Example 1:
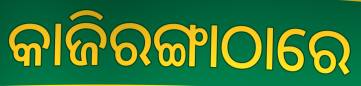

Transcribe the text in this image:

କାଜିରଙ୍ଗାଠାରେ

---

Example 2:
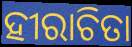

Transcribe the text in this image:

ହୀରାଚିତା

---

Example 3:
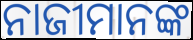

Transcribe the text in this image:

ନାଜୀମାନଙ୍କ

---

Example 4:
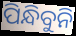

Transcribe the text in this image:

ପିନ୍ଧିବୁନି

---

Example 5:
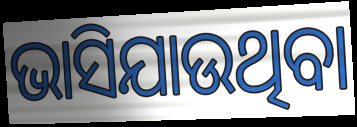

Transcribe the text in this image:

ଭାସିଯାଉଥିବା